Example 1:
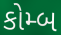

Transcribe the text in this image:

કોમ્બ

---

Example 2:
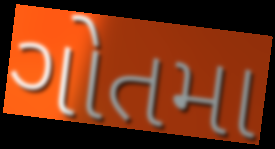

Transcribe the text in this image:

ગોતમા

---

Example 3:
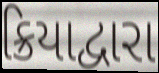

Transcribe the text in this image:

ક્રિયાદ્વારા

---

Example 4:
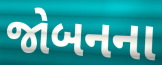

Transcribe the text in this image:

જોબનના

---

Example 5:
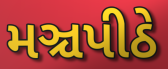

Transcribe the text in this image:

મઞ્ચપીઠે